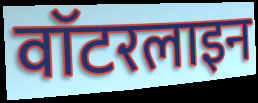
वॉटरलाइन